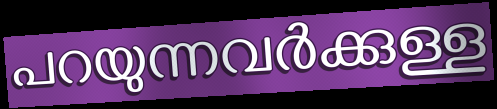
പറയുന്നവർക്കുള്ള